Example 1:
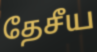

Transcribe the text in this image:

தேசீய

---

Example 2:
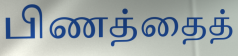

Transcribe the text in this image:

பிணத்தைத்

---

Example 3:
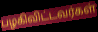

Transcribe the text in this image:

பழகிவிட்டவர்கள்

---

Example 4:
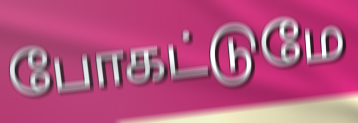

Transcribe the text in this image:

போகட்டுமே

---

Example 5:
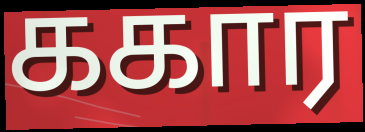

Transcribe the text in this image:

ககார